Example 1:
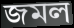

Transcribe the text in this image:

জমল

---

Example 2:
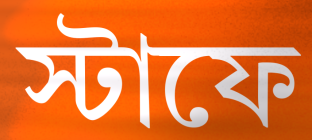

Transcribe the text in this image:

স্টাফে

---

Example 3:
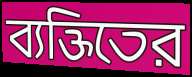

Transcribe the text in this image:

ব্যক্তিতের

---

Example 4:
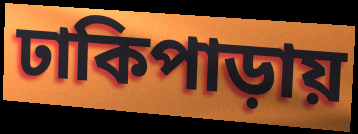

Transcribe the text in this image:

ঢাকিপাড়ায়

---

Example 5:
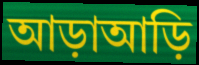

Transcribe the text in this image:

আড়াআড়ি